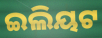
ଇଲିୟଟ